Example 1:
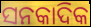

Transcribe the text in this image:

ସନକାଦିକ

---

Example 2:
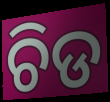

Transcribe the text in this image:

ଚିଡ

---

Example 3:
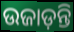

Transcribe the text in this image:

ଉଜାଡ଼ନ୍ତି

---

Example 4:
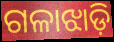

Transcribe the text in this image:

ଗଳାଝାଡ଼ି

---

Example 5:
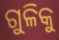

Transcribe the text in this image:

ଗୁଳିକୁ